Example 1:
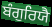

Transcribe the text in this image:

ਬੰਗੁਰਿਯੈ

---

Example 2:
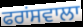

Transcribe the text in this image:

ਫਰਾਂਸਵਾਲਾ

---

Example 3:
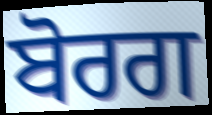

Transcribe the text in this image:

ਬੋਰਗ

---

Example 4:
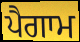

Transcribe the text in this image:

ਪੈਗਾਮ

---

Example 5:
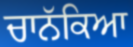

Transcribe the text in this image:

ਚਾਨੱਕਿਆ